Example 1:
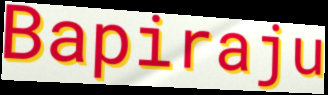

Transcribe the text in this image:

Bapiraju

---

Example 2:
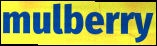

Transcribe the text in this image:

mulberry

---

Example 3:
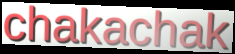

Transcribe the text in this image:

chakachak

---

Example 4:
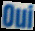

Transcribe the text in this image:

Oui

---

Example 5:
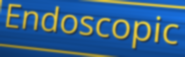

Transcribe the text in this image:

Endoscopic